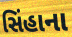
સિંહાના